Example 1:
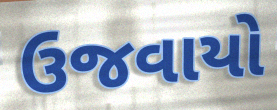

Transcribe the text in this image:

ઉજવાયો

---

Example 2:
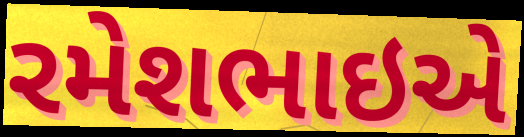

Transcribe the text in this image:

રમેશભાઇએ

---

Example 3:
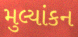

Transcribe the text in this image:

મુલ્યાંકન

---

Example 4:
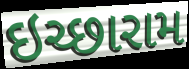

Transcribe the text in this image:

ઇચ્છારામ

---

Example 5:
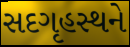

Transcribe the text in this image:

સદગૃહસ્થને